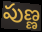
పుణ్ణ